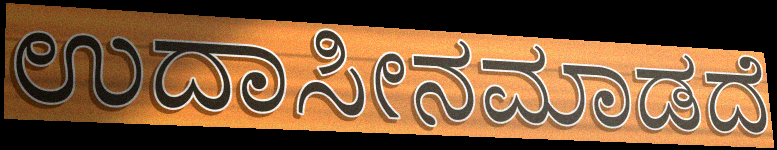
ಉದಾಸೀನಮಾಡದೆ